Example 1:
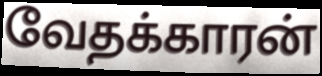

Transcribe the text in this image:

வேதக்காரன்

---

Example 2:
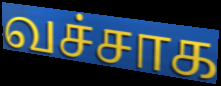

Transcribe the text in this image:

வச்சாக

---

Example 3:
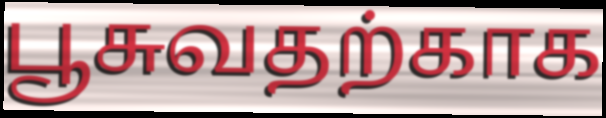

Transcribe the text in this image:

பூசுவதற்காக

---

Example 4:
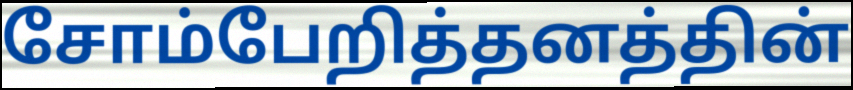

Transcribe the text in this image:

சோம்பேறித்தனத்தின்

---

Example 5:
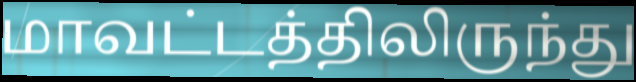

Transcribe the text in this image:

மாவட்டத்திலிருந்து